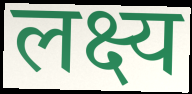
लक्ष्‍य